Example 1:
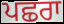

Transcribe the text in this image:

ਪਛਰਾ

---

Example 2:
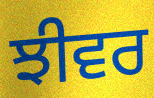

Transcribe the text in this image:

ਝੀਵਰ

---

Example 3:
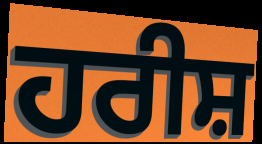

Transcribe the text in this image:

ਹਰੀਸ਼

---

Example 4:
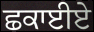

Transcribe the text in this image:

ਛਕਾਈਏ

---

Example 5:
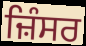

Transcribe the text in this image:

ਜ਼ਿੰਸਰ